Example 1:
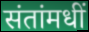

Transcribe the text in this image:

संतांमधीं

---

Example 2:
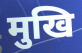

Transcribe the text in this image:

मुखि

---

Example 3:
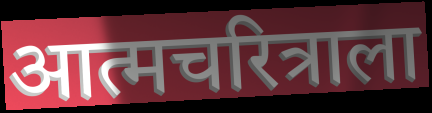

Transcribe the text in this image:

आत्मचरित्राला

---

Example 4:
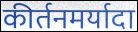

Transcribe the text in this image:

कीर्तनमर्यादा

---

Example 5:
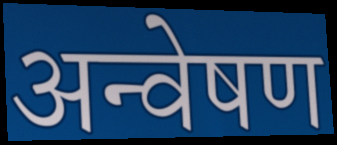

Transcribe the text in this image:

अन्वेषण